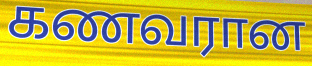
கணவரான